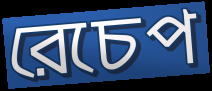
রেচেপ